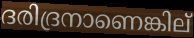
ദരിദ്രനാണെങ്കില്